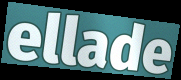
ellade